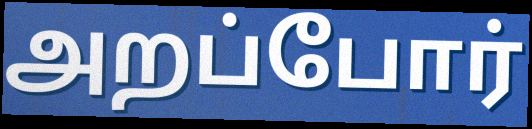
அறப்போர்